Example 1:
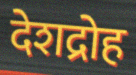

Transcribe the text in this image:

देशद्रोह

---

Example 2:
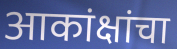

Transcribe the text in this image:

आकांक्षांचा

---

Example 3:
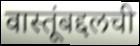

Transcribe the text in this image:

वास्तूंबद्दलची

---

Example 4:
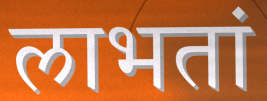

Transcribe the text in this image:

लाभतां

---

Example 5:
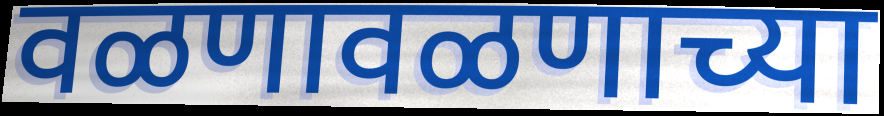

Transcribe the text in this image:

वळणावळणाच्या